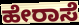
ಹೇರಾಸೆ